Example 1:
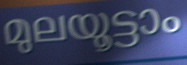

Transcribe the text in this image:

മുലയൂട്ടാം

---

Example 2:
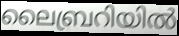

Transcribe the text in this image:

ലൈബ്രറിയിൽ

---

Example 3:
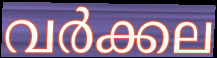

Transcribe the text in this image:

വർക്കല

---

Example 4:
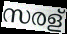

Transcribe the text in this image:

സരള്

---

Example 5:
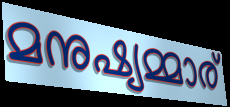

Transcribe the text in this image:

മനുഷ്യമ്മാര്